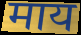
माय